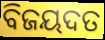
ବିଜୟଦତ